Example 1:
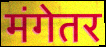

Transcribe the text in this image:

मंगेतर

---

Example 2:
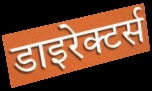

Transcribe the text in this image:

डाइरेक्टर्स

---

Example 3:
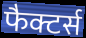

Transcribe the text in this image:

फैक्टर्स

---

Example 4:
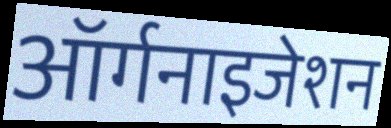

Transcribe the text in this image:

ऑर्गनाइजेशन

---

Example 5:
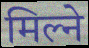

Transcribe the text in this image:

मिल्ने